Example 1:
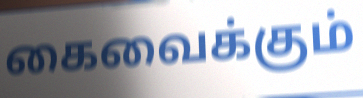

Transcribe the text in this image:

கைவைக்கும்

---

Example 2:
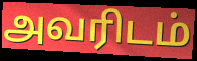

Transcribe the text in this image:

அவரிடம்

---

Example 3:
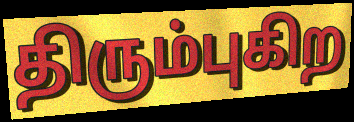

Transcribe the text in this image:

திரும்புகிற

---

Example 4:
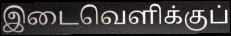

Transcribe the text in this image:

இடைவெளிக்குப்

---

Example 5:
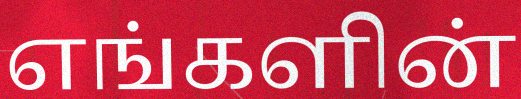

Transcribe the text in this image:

எங்களின்